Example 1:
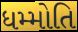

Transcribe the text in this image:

ધમ્મોતિ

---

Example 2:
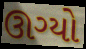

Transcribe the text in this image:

ઊગ્યો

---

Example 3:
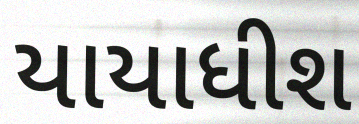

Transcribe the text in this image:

યાયાધીશ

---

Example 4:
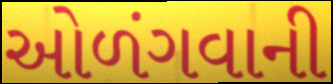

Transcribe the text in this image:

ઓળંગવાની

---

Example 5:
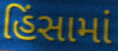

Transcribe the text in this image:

હિંસામાં